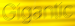
Gigantic